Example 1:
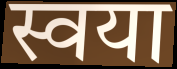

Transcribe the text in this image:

स्वया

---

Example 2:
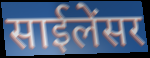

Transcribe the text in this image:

साईलेंसर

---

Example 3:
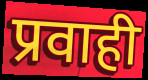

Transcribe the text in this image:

प्रवाही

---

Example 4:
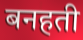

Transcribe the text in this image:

बनहती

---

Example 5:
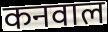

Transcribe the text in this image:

कनवाल